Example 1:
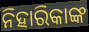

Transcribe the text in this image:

ନିହାରିକାଙ୍କ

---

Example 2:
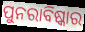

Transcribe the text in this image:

ପୁନରାବିଷ୍କାର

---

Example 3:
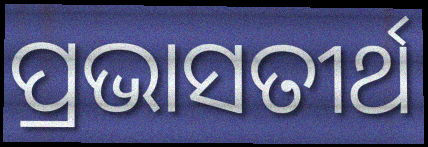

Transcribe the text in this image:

ପ୍ରଭାସତୀର୍ଥ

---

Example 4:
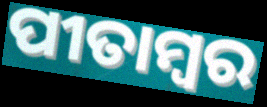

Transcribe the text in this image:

ପୀତାମ୍ବର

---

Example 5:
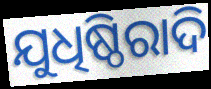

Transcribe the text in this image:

ଯୁଧିଷ୍ଠିରାଦି